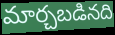
మార్చబడినది